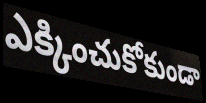
ఎక్కించుకోకుండా